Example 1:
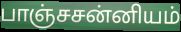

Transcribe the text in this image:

பாஞ்சசன்னியம்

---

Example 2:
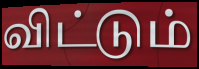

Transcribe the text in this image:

விட்டும்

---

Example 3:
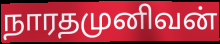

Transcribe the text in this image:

நாரதமுனிவன்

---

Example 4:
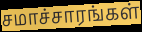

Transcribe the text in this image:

சமாச்சாரங்கள்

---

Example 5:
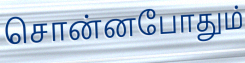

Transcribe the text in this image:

சொன்னபோதும்